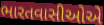
ભારતવાસીઓએ